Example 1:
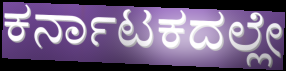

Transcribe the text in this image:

ಕರ್ನಾಟಕದಲ್ಲೇ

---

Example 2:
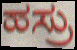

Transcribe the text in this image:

ಹಸ್ರು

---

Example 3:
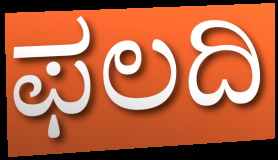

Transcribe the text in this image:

ಫಲದಿ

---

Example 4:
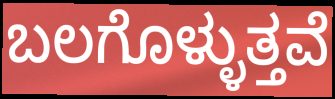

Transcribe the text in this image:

ಬಲಗೊಳ್ಳುತ್ತವೆ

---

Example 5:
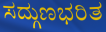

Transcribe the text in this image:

ಸದ್ಗುಣಭರಿತ